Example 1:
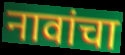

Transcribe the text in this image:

नावांचा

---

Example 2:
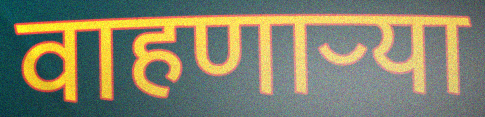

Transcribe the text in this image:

वाहणाऱ्या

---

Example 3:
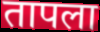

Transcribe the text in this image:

तापला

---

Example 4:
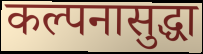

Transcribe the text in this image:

कल्पनासुद्धा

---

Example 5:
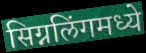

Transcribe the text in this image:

सिग्नलिंगमध्ये